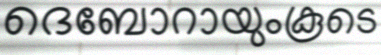
ദെബോറായുംകൂടെ